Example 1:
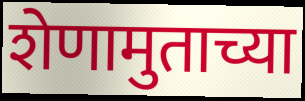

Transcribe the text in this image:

शेणामुताच्या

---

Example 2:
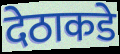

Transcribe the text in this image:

देठाकडे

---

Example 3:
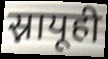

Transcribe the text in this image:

स्नायूही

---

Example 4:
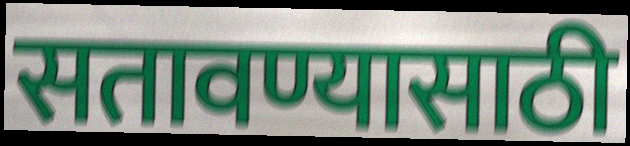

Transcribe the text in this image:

सतावण्यासाठी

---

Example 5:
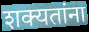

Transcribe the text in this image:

शक्यतांना